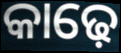
କାଢ଼େ